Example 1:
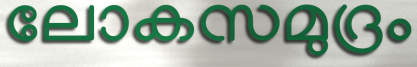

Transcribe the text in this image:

ലോകസമുദ്രം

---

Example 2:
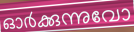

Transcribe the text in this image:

ഓർക്കുന്നുവോ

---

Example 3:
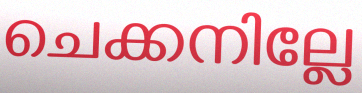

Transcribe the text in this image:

ചെക്കനില്ലേ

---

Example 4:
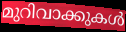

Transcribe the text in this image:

മുറിവാക്കുകൾ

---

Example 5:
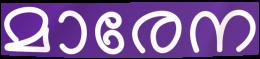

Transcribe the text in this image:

മാരേന